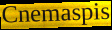
Cnemaspis